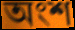
অংশ